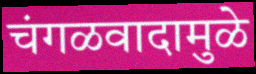
चंगळवादामुळे